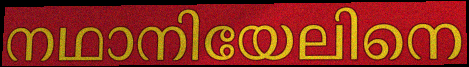
നഥാനിയേലിനെ